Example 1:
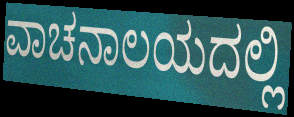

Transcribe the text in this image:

ವಾಚನಾಲಯದಲ್ಲಿ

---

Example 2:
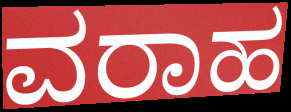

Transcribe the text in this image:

ವರಾಹ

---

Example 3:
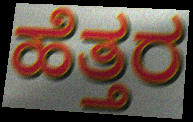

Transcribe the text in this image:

ಹೆತ್ತರ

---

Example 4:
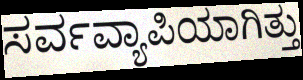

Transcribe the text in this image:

ಸರ್ವವ್ಯಾಪಿಯಾಗಿತ್ತು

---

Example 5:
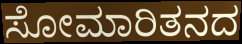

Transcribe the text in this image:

ಸೋಮಾರಿತನದ